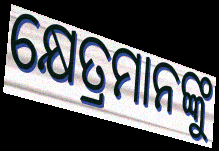
କ୍ଷେତ୍ରମାନଙ୍କୁ